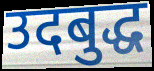
उदबुद्ध